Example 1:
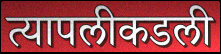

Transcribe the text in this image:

त्यापलीकडली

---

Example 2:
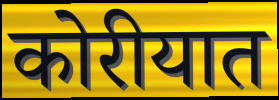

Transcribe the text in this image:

कोरीयात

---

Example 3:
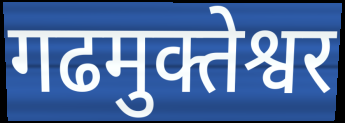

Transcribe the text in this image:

गढमुक्तेश्वर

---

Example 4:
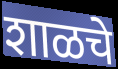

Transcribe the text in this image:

शाळचे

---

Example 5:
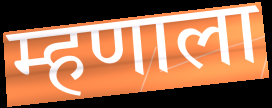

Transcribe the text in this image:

म्‍हणाला